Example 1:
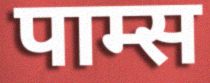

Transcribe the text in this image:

पाम्स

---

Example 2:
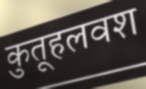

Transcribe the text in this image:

कुतूहलवश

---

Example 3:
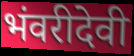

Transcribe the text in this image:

भंवरीदेवी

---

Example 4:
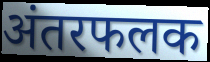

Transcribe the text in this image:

अंतरफलक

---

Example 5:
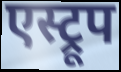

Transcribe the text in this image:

एस्ट्रूप